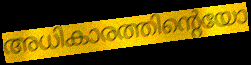
അധികാരത്തിന്റെയോ